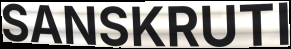
SANSKRUTI